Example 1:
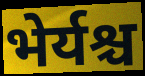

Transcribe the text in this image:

भेर्यश्च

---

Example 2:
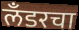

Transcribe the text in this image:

लँडरचा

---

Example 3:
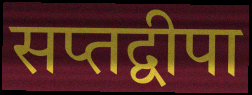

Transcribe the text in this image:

सप्तद्वीपा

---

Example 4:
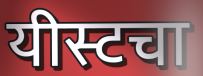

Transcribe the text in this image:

यीस्टचा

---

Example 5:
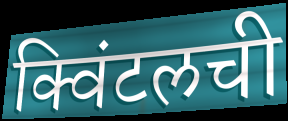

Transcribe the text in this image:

क्विंटलची